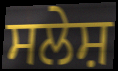
ਸਲੇਸ਼